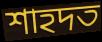
শাহদত